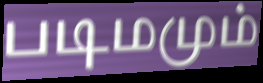
படிமமும்